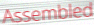
Assembled